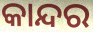
କାନ୍ଦର